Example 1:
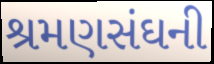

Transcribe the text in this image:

શ્રમણસંઘની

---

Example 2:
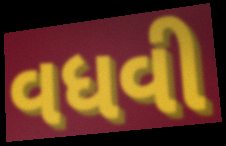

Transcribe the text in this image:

વધવી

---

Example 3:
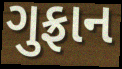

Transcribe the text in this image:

ગુફ્રાન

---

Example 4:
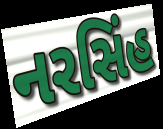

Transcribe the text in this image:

નરસિંહ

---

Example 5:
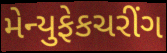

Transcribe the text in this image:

મેન્યુફેકચરીંગ